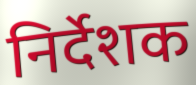
निर्देशक